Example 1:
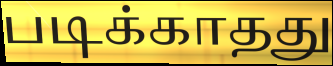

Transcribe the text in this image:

படிக்காதது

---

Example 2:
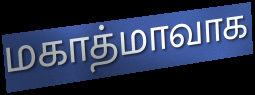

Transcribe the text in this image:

மகாத்மாவாக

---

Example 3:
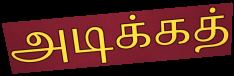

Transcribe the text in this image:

அடிக்கத்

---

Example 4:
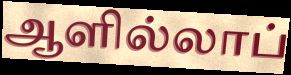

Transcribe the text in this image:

ஆளில்லாப்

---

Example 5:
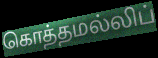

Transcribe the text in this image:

கொத்தமல்லிப்